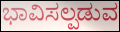
ಭಾವಿಸಲ್ಪಡುವ